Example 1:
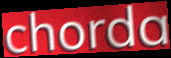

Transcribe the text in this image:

chorda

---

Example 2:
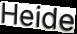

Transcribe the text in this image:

Heide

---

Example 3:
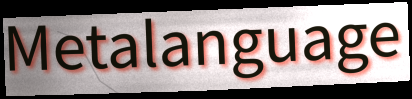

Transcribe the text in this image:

Metalanguage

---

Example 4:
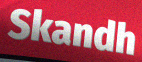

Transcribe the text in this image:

Skandh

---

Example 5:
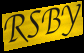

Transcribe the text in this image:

RSBY